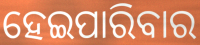
ହେଇପାରିବାର